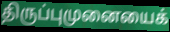
திருப்புமுனையைக்